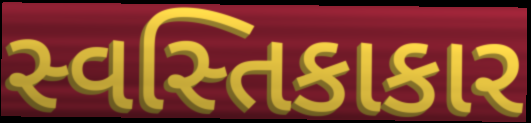
સ્વસ્તિકાકાર